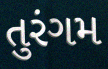
તુરંગમ